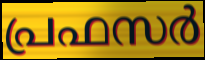
പ്രഫസർ